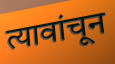
त्यावांचून